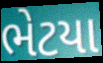
ભેટયા